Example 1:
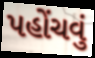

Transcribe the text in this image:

પહોંચવું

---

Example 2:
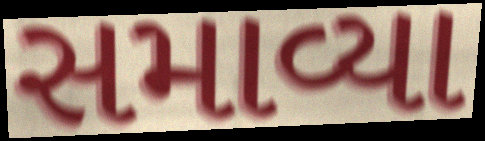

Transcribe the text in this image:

સમાવ્યા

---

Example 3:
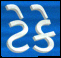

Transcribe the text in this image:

ટેકે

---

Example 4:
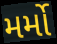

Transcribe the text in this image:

મર્મો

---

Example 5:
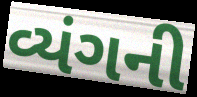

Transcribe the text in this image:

વ્યંગની